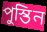
পুস্তিন